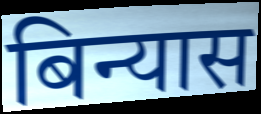
बिन्यास